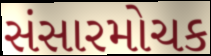
સંસારમોચક